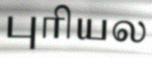
புரியல